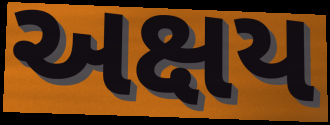
અક્ષય